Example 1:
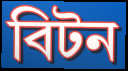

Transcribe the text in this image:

বিটন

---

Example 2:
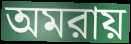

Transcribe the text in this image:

অমরায়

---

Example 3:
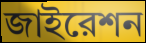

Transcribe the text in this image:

জাইরেশন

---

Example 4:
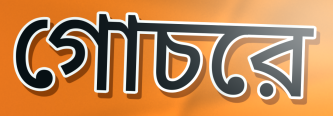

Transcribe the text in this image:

গোচরে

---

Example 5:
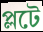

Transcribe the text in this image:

প্লটে